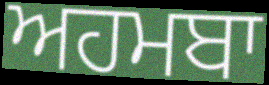
ਅਹਮਬਾ